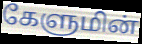
கேளுமின்